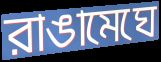
রাঙামেঘে